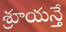
శ్రూయన్తే